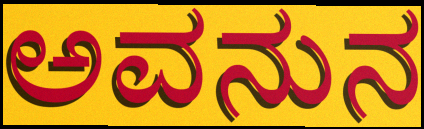
ಅವನುನ